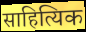
साहित्यिक